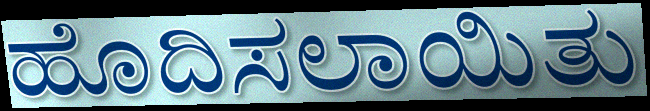
ಹೊದಿಸಲಾಯಿತು